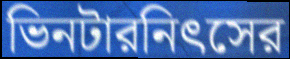
ভিনটারনিৎসের